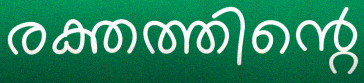
രക്തത്തിന്റെ